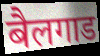
बैलगाड